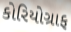
કોરિયોગ્રાફ